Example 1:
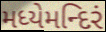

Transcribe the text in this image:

મધ્યેમન્દિરં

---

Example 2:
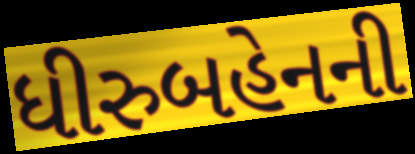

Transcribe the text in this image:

ધીરુબહેનની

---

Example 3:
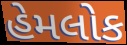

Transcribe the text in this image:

હેમલોક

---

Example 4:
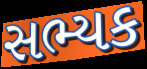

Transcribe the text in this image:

સભ્યક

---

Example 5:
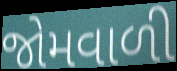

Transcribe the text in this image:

જોમવાળી